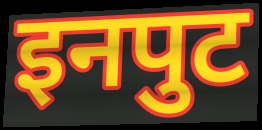
इनपुट